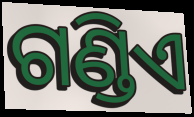
ଗଣ୍ଡିଏ